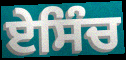
ਏਸਿੰਚ